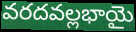
వరదవల్లభాయై